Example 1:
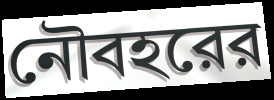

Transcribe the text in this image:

নৌবহরের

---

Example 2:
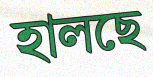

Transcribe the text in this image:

হালছে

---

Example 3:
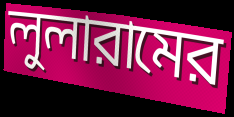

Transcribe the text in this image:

লুলারামের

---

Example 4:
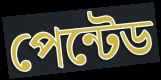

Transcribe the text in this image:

পেন্টেড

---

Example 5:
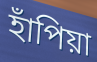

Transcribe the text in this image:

হাঁপিয়া